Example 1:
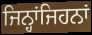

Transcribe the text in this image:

ਜਿਨ੍ਹਾਂਜਿਹਨਾਂ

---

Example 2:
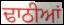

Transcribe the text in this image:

ਢਾਠੀਆਂ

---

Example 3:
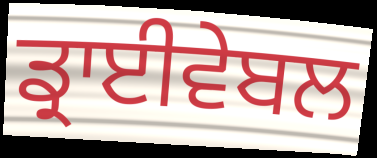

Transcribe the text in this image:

ਡ੍ਰਾਈਵੇਬਲ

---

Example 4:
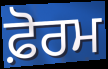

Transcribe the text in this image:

ਫ਼ੋਰਮ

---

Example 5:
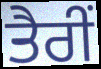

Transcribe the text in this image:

ਤੈਰੀਂ